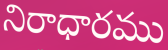
నిరాధారము